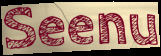
Seenu